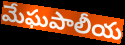
మేఘపాలీయ